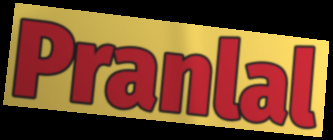
Pranlal